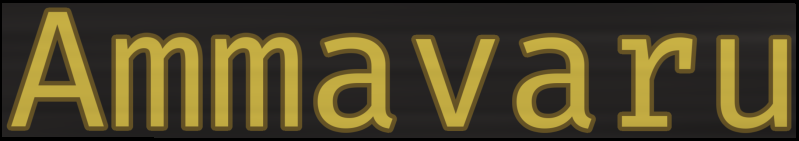
Ammavaru